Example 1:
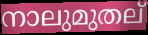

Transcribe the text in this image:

നാലുമുതല്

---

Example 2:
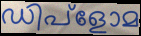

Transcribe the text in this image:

ഡിപ്ളോമ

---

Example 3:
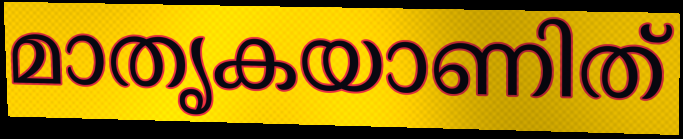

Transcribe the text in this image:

മാതൃകയാണിത്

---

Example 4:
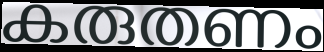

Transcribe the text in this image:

കരുതണം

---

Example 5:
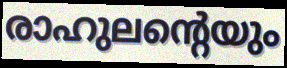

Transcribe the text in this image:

രാഹുലന്റെയും